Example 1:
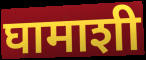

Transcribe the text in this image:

घामाशी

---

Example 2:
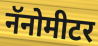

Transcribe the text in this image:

नॅनोमीटर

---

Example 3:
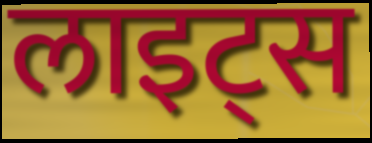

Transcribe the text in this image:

लाइट्स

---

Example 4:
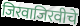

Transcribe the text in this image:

जिरवाजिरवीचे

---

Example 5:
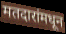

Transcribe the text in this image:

मतदारांमधून